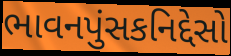
ભાવનપુંસકનિદ્દેસો